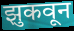
झुकवून